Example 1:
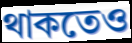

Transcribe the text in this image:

থাকতেও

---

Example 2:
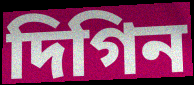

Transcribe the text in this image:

দিগিন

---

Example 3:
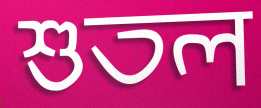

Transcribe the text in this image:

শুতল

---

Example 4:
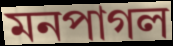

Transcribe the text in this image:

মনপাগল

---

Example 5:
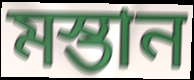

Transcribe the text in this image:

মস্তান